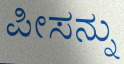
ಪೀಸನ್ನು